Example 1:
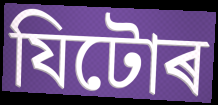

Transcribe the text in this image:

যিটোৰ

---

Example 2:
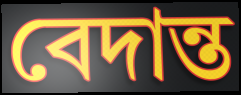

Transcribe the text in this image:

বেদান্ত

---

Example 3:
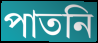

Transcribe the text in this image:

পাতনি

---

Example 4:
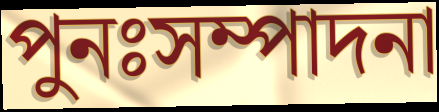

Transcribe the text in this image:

পুনঃসম্পাদনা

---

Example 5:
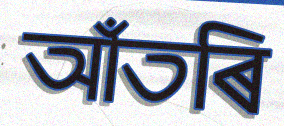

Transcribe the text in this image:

আঁতৰি